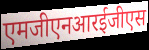
एमजीएनआरईजीएस